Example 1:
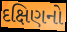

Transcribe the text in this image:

દક્ષિણનો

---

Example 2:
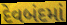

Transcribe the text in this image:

દેવબંદમાં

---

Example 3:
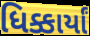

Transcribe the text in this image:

ધિક્કાર્યાં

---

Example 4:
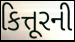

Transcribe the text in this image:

કિત્તૂરની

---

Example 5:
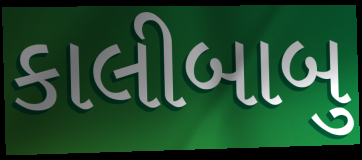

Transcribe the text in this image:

કાલીબાબુ